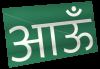
आऊँ